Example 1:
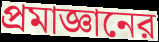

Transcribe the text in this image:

প্রমাজ্ঞানের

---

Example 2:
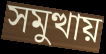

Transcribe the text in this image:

সমুত্থায়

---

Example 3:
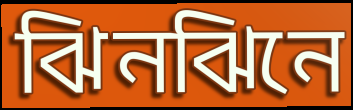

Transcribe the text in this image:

ঝিনঝিনে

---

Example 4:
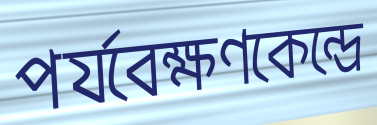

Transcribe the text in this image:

পর্যবেক্ষণকেন্দ্রে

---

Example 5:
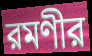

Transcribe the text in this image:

রমণীর